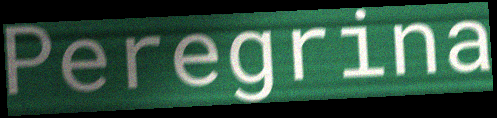
Peregrina